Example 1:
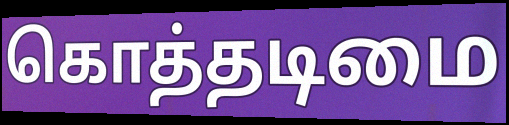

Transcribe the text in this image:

கொத்தடிமை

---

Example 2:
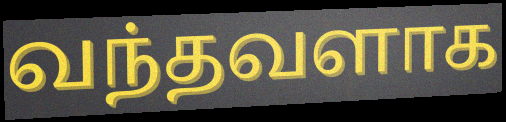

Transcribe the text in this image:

வந்தவளாக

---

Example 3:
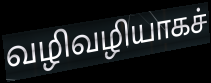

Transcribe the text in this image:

வழிவழியாகச்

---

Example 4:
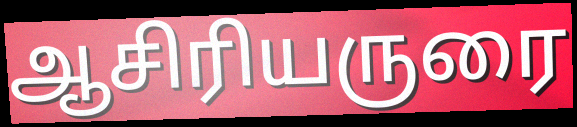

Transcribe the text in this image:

ஆசிரியருரை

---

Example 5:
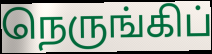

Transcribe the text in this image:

நெருங்கிப்